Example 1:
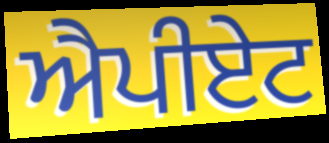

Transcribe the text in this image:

ਐਪੀਏਟ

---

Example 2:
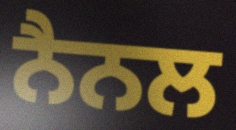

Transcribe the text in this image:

ਨੈਨਲ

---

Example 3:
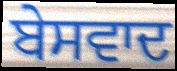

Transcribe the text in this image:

ਬੇਸਵਾਦ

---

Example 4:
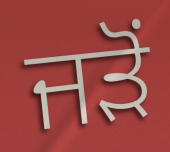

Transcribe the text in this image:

ਜੜੋਂ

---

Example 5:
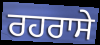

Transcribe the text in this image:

ਰਹਰਾਸੇ